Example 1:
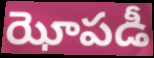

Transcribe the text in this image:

ఝోపడీ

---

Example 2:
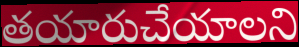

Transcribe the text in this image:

తయారుచేయాలని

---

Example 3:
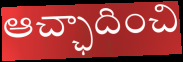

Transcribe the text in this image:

ఆచ్ఛాదించి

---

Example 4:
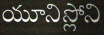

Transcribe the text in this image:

యూనిస్లోని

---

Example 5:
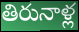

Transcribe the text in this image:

తిరునాళ్ల